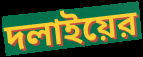
দলাইয়ের